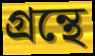
গ্রন্থে